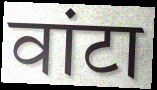
वांटा